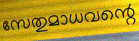
സേതുമാധവന്റെ